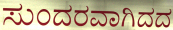
ಸುಂದರವಾಗಿದದ